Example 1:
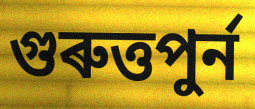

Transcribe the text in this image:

গুৰুত্তপুৰ্ন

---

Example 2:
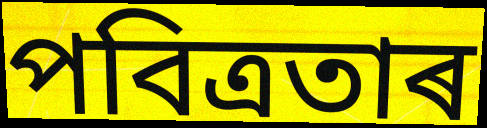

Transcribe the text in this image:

পবিত্ৰতাৰ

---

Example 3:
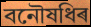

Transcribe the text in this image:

বনৌষধিৰ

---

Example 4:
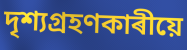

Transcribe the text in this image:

দৃশ্যগ্ৰহণকাৰীয়ে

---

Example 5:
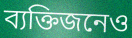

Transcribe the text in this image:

ব্যক্তিজনেও